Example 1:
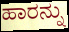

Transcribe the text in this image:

ಹಾರನ್ನು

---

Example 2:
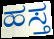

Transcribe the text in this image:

ಹಸ್ತ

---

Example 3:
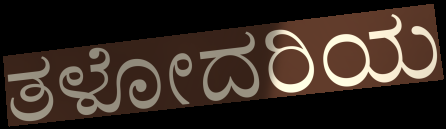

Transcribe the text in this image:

ತಳೋದರಿಯ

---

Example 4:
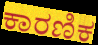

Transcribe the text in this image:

ಕಾರಣಿಕ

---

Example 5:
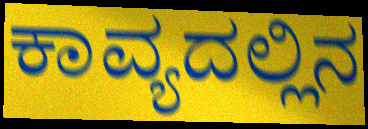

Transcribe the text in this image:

ಕಾವ್ಯದಲ್ಲಿನ